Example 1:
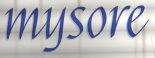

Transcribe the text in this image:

mysore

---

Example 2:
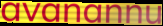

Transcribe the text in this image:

avanannu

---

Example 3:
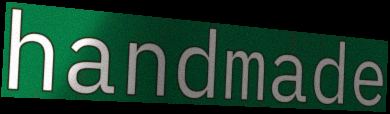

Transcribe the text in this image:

handmade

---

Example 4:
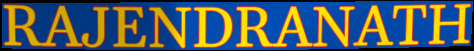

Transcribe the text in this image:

RAJENDRANATH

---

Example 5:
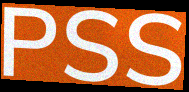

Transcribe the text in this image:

PSS